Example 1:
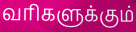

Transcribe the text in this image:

வரிகளுக்கும்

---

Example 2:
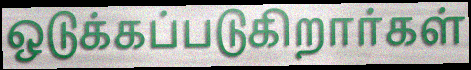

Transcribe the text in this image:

ஒடுக்கப்படுகிறார்கள்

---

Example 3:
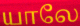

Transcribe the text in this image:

யாலே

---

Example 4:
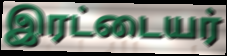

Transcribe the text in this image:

இரட்டையர்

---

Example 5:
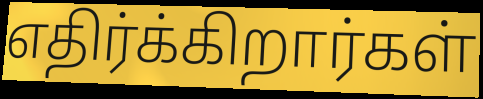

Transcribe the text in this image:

எதிர்க்கிறார்கள்